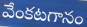
వేంకటగానం